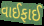
વાઈફાઈ